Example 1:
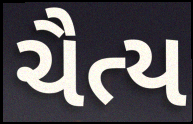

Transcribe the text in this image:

ચૈત્ય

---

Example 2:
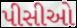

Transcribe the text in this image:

પીસીઓ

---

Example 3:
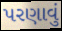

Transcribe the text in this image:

પરણાવું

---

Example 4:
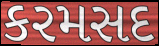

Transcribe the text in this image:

કરમસદ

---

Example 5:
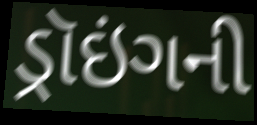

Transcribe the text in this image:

ડ્રૉઇંગની